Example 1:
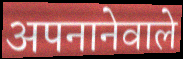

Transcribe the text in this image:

अपनानेवाले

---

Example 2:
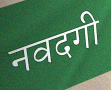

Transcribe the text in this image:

नवदगी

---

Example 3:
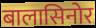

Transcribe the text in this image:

बालासिनोर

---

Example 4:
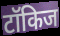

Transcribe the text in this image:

टॉकिज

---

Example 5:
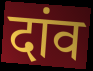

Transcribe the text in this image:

दांव